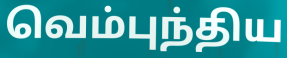
வெம்புந்திய